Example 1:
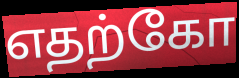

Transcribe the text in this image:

எதற்கோ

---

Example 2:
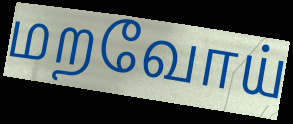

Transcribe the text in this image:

மறவோய்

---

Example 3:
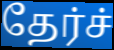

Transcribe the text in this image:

தேர்ச்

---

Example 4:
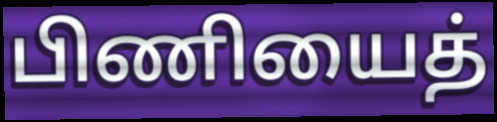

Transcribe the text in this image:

பிணியைத்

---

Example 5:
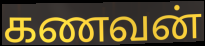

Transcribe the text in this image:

கணவன்